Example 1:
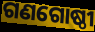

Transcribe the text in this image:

ଗଣଗୋଷ୍ଠୀ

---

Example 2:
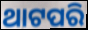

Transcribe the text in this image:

ଥାଟପରି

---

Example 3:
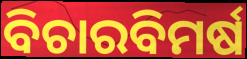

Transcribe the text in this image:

ବିଚାରବିମର୍ଷ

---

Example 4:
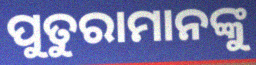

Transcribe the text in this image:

ପୁତୁରାମାନଙ୍କୁ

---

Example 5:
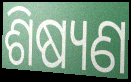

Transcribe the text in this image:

ଶିଷ୍ୟଣ